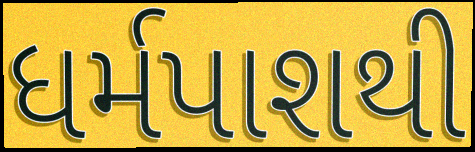
ધર્મપાશથી